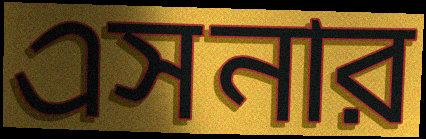
এসনার